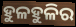
ହୁଳହୁଳିର